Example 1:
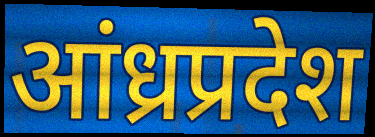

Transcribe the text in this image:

आंध्रप्रदेश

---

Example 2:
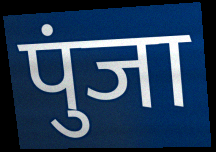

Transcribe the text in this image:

पुंजा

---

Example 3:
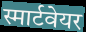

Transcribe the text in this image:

स्मार्टवेयर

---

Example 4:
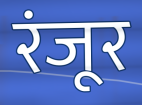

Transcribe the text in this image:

रंजूर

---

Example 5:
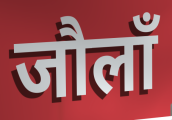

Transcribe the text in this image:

जौलाँ